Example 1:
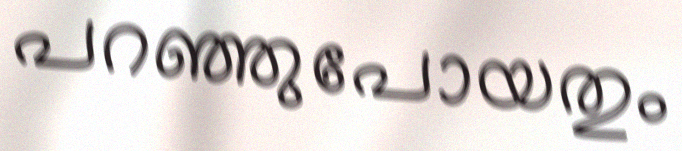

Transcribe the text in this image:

പറഞ്ഞുപോയതും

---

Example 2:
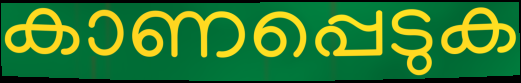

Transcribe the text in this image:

കാണപ്പെടുക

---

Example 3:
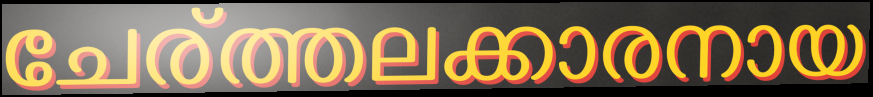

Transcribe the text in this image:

ചേര്ത്തലക്കാരനായ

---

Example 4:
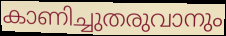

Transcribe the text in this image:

കാണിച്ചുതരുവാനും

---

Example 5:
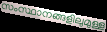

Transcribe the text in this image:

സംസ്ഥാനങ്ങളിലുമുള്ള